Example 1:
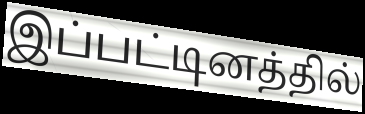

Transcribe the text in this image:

இப்பட்டினத்தில்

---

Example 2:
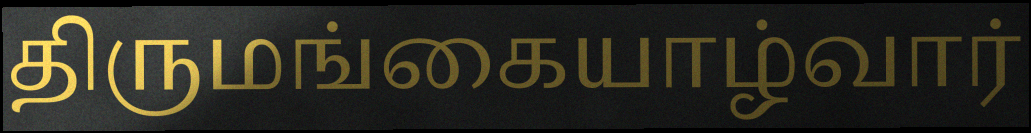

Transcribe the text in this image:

திருமங்கையாழ்வார்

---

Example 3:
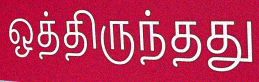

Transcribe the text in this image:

ஒத்திருந்தது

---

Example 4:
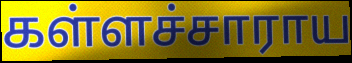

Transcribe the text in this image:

கள்ளச்சாராய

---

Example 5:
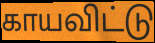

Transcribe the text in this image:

காயவிட்டு